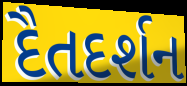
દૈતદર્શન